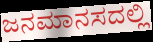
ಜನಮಾನಸದಲ್ಲಿ